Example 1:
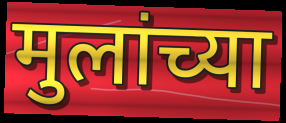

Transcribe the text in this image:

मुलांच्या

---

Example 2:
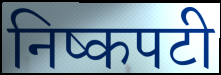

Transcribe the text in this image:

निष्कपटी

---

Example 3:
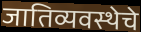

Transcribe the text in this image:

जातिव्यवस्थेचे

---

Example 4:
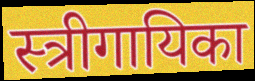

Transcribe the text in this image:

स्त्रीगायिका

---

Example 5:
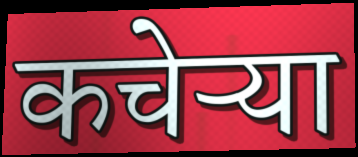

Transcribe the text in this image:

कचेऱ्या